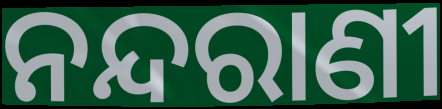
ନନ୍ଦରାଣୀ